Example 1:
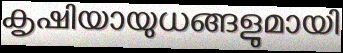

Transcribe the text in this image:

കൃഷിയായുധങ്ങളുമായി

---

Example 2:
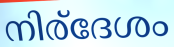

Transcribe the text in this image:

നിര്ദേശം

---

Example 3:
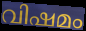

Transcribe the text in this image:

വിഷമം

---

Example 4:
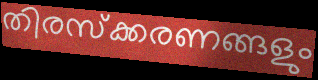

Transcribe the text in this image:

തിരസ്ക്കരണങ്ങളും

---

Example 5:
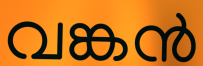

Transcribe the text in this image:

വങ്കൻ